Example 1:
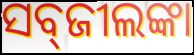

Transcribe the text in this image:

ସବ୍‌ଜୀଲଙ୍କା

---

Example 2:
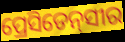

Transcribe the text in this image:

ପ୍ରେସିଡେନ୍‌ସୀର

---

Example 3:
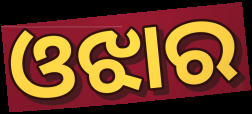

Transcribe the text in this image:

ଓଝାର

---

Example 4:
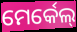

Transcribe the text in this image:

ମେର୍କେଲ୍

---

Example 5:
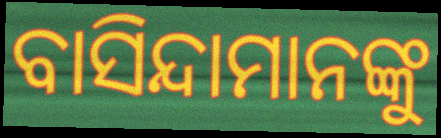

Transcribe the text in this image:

ବାସିନ୍ଦାମାନଙ୍କୁ